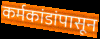
कर्मकांडांपासून